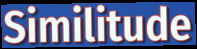
Similitude